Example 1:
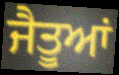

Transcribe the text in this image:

ਜੈਤੂਆਂ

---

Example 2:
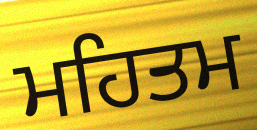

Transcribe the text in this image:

ਮਹਿਤਮ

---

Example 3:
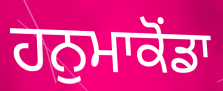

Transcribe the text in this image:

ਹਨੁਮਾਕੋਂਡਾ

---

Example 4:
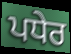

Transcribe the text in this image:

ਪਧੇਰ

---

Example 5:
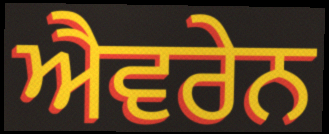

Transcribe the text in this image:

ਐਵਰੇਨ